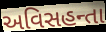
અવિસહન્તા